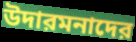
উদারমনাদের